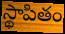
స్థాపితం